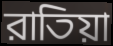
রাতিয়া